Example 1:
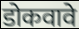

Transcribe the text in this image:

डोकवावे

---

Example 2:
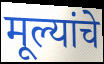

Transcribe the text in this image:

मूल्यांचे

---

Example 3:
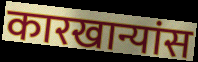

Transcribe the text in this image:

कारखान्यांस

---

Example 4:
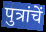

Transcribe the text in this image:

पुत्रांचें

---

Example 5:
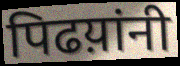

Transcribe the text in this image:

पिढय़ांनी